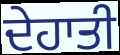
ਦੇਹਾਤੀ